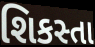
શિકસ્તા